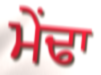
ਮੇਂਢਾ